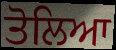
ਤੋਲਿਆ